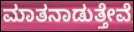
ಮಾತನಾಡುತ್ತೇವೆ